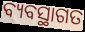
ବ୍ଯବସ୍ଥାଗତ